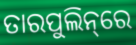
ତାରପୁଲିନ୍‌ରେ